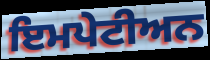
ਇਮਪੇਟੀਅਨ